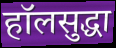
हॉलसुद्धा